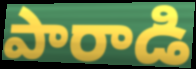
పారాడి